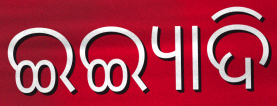
ଇଇ୍ୟାଦି